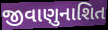
જીવાણુનાશિત